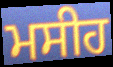
ਮਸੀਹ